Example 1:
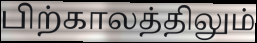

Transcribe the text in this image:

பிற்காலத்திலும்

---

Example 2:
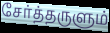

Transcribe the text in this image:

சேர்த்தருளும்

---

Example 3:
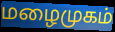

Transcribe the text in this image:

மழைமுகம்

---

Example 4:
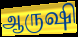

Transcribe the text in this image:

ஆருஷி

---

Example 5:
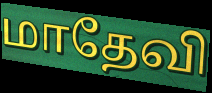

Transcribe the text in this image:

மாதேவி